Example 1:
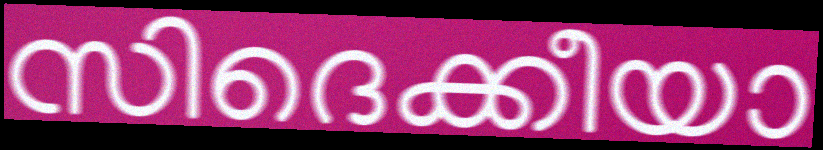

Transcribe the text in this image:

സിദെക്കീയാ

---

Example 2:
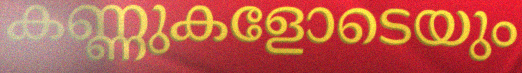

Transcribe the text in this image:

കണ്ണുകളോടെയും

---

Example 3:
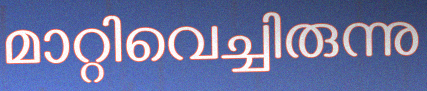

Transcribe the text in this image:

മാറ്റിവെച്ചിരുന്നു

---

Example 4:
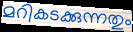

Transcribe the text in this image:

മറികടക്കുന്നതും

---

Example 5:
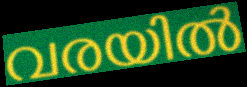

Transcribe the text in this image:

വരയിൽ